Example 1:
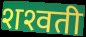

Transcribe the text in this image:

शश्वती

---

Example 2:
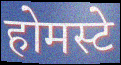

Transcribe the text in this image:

होमस्टे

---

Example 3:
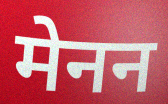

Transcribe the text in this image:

मेनन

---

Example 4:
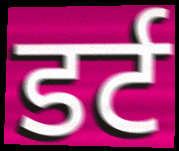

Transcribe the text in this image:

डर्ट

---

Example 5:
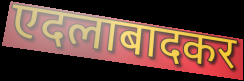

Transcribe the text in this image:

एदलाबादकर